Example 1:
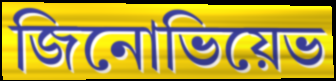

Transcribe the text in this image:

জিনোভিয়েভ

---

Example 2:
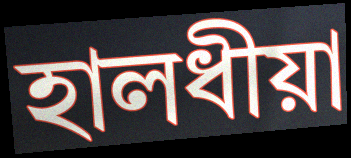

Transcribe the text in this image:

হালধীয়া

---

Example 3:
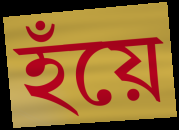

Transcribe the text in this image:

হঁয়ে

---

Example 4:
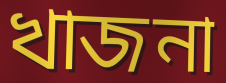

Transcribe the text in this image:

খাজনা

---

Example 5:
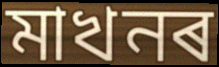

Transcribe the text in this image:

মাখনৰ